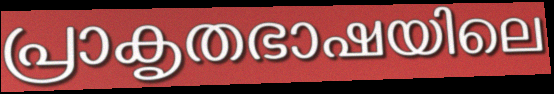
പ്രാകൃതഭാഷയിലെ